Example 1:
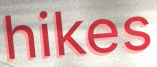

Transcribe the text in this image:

hikes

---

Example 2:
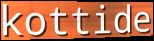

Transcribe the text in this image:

kottide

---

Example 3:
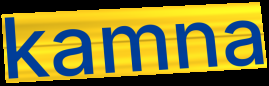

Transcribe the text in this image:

kamna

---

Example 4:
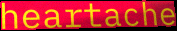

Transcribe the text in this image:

heartache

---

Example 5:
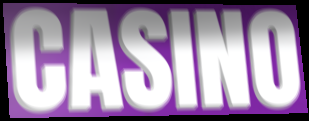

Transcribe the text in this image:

CASINO